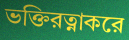
ভক্তিরত্নাকরে